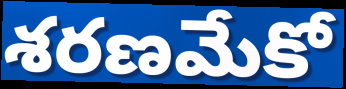
శరణమేకో